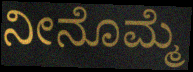
ನೀನೊಮ್ಮೆ